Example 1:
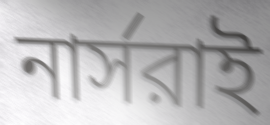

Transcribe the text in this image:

নার্সরাই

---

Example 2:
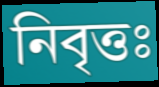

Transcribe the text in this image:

নিবৃত্তঃ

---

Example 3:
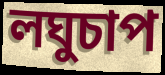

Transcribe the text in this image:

লঘুচাপ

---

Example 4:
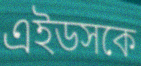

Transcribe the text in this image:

এইডসকে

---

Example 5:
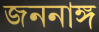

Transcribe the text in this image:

জননাঙ্গ